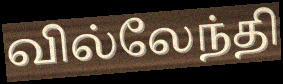
வில்லேந்தி